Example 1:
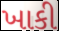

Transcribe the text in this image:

ખાકી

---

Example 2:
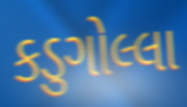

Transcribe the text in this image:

કડુગોલ્લા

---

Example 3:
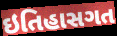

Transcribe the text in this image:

ઇતિહાસગત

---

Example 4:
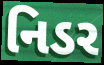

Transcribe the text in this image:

નિડર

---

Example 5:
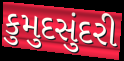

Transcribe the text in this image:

કુમુદસુંદરી